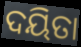
ଦୟିତା